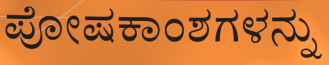
ಪೋಷಕಾಂಶಗಳನ್ನು